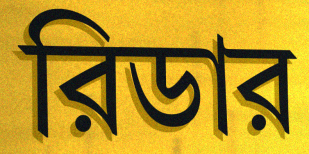
রিডার